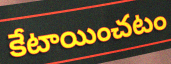
కేటాయించటం